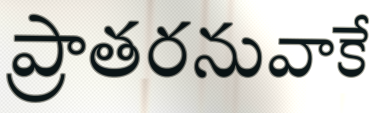
ప్రాతరనువాకే